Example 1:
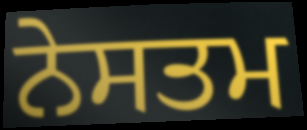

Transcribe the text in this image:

ਨੇਸਤਮ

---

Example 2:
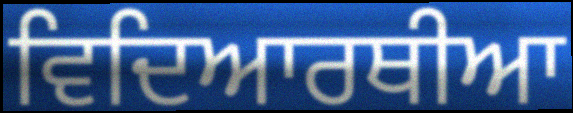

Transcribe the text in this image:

ਵਿਦਿਆਰਥੀਆ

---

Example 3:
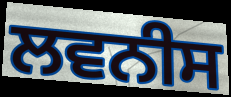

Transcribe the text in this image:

ਲਵਨੀਸ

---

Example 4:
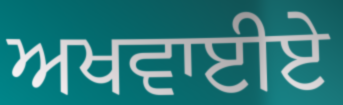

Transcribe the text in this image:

ਅਖਵਾਈਏ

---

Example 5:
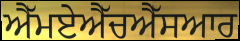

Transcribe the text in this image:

ਐੱਮਏਐੱਚਐੱਸਆਰ